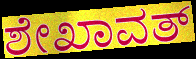
ಶೇಖಾವತ್